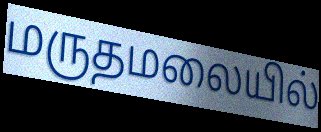
மருதமலையில்